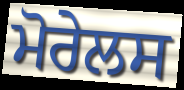
ਮੋਰੇਲਸ